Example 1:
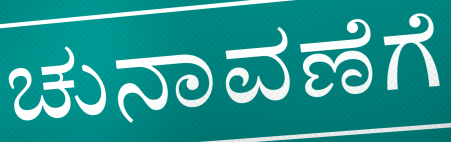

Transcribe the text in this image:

ಚುನಾವಣೆಗೆ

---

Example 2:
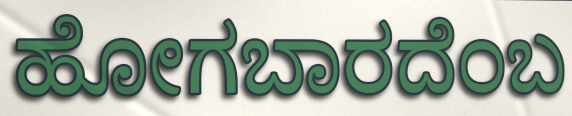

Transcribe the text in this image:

ಹೋಗಬಾರದೆಂಬ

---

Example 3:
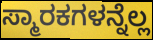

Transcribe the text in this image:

ಸ್ಮಾರಕಗಳನ್ನೆಲ್ಲ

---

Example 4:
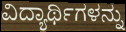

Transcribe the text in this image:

ವಿದ್ಯಾರ್ಥಿಗಳನ್ನು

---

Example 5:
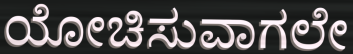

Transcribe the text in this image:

ಯೋಚಿಸುವಾಗಲೇ